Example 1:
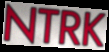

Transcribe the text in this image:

NTRK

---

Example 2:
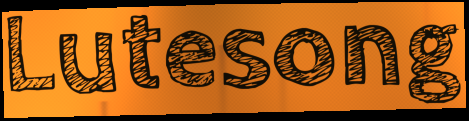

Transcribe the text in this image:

Lutesong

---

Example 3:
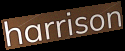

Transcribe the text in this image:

harrison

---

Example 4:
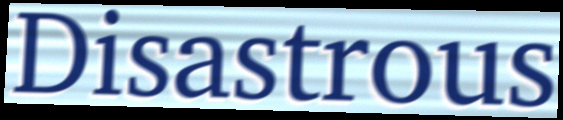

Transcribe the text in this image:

Disastrous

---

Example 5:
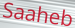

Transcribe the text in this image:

Saaheb